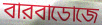
বারবাডোজে